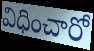
విధించారో